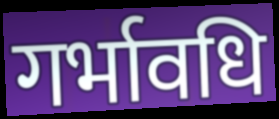
गर्भावधि